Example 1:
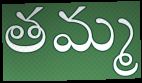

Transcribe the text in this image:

తమ్మ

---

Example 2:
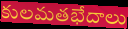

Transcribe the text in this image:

కులమతభేదాలు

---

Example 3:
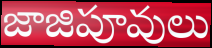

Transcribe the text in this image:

జాజిపూవులు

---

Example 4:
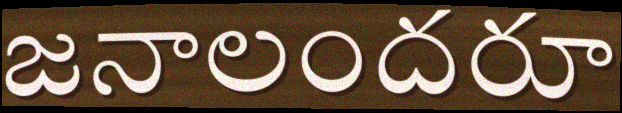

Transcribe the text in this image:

జనాలందరూ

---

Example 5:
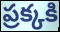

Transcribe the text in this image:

ప్రక్కకి